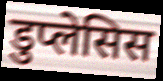
डुप्लेसिस